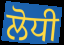
ਲੋਧੀ